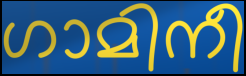
ഗാമിനീ